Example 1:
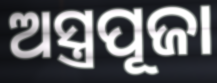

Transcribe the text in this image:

ଅସ୍ତ୍ରପୂଜା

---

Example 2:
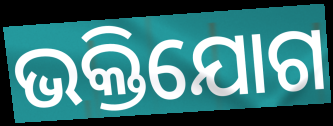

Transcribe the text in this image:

ଭକ୍ତିଯୋଗ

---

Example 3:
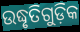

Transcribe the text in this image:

ଉଦ୍ଧୃତିଗୁଡ଼ିକ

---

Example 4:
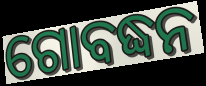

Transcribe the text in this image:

ଗୋବଦ୍ଧନ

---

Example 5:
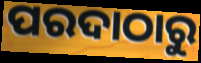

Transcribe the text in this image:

ପରଦାଠାରୁ